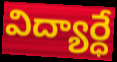
విద్యార్ధే